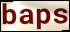
baps